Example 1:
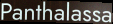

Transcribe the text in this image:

Panthalassa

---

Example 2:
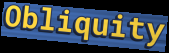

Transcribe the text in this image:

Obliquity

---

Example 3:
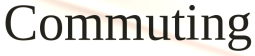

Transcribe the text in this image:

Commuting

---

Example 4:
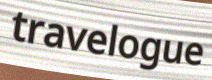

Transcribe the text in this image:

travelogue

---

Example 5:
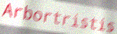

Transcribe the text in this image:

Arbortristis